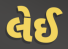
લેઈ